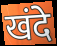
खंदे